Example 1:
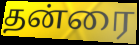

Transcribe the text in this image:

தன்ரை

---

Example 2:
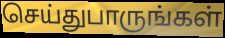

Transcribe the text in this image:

செய்துபாருங்கள்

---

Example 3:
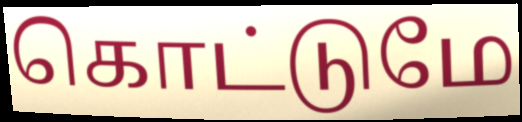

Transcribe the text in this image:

கொட்டுமே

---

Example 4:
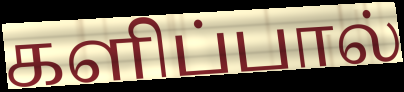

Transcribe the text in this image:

களிப்பால்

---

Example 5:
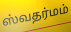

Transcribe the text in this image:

ஸ்வதர்மம்